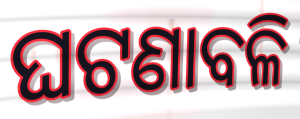
ଘଟଣାବଳି